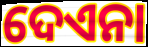
ଦେଏନା